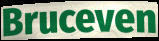
Bruceven